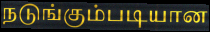
நடுங்கும்படியான